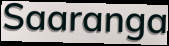
Saaranga